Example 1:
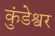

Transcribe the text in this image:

कुंडेश्वर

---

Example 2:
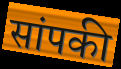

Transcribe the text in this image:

सांपकी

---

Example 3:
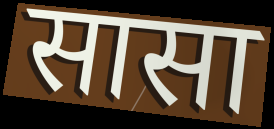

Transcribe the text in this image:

सासा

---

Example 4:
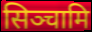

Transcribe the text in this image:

सिञ्चामि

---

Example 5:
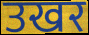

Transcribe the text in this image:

उखर